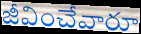
జీవించేవారూ